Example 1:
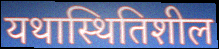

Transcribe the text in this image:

यथास्थितिशील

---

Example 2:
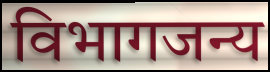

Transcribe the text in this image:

विभागजन्य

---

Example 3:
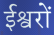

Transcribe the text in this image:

ईश्वरों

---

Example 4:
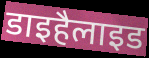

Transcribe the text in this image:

डाइहैलाइड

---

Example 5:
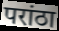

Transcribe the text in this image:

परांठा